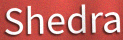
Shedra